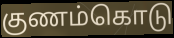
குணம்கொடு